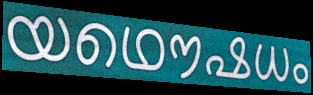
യഥൌഷധം